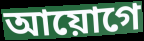
আয়োগে